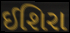
ઈશિરા